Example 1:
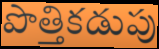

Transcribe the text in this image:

పొత్తికడుపు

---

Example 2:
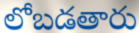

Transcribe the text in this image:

లోబడతారు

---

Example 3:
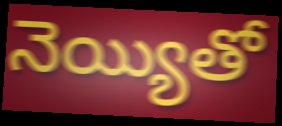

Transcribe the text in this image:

నెయ్యితో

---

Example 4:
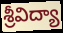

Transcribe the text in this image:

శ్రీవిద్యా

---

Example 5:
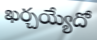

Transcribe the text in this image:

ఖర్చయ్యేదో